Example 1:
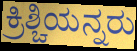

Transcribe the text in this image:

ಕ್ರಿಶ್ಚಿಯನ್ನರು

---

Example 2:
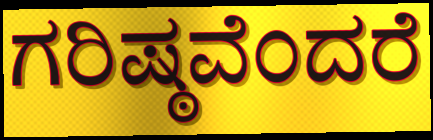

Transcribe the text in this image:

ಗರಿಷ್ಠವೆಂದರೆ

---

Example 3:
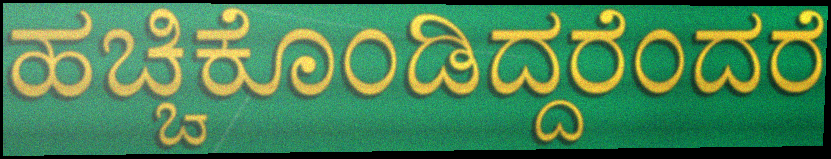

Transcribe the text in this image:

ಹಚ್ಚಿಕೊಂಡಿದ್ದರೆಂದರೆ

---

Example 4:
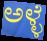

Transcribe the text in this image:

ಅಳ್ಳೆ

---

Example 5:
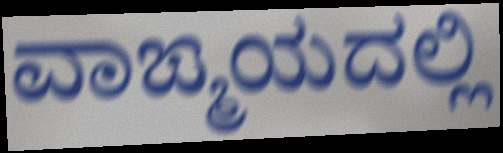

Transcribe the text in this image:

ವಾಙ್ಮಯದಲ್ಲಿ